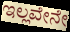
ಇಲ್ಲವೇನೇ